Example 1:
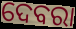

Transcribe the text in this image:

ଦେବରା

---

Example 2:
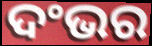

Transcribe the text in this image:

ଦଂଭର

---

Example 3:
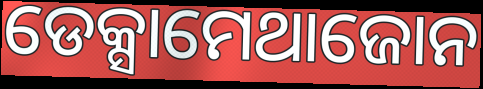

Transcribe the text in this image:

ଡେକ୍ସାମେଥାଜୋନ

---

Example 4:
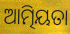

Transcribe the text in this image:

ଆତ୍ମିୟତା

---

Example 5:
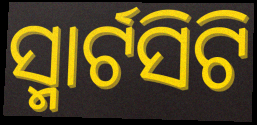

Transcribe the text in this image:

ସ୍ମାର୍ଟସିଟି